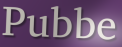
Pubbe